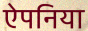
ऐपनिया